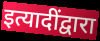
इत्यादींद्वारा